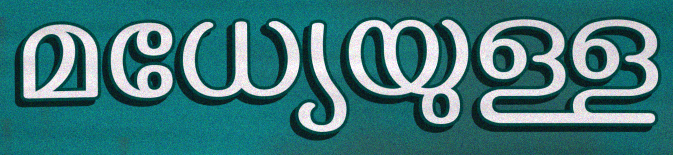
മധ്യേയുള്ള